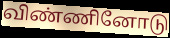
விண்ணினோடு